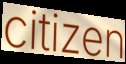
citizen